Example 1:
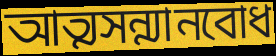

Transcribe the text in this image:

আত্মসন্মানবোধ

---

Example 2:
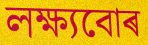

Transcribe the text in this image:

লক্ষ্যবোৰ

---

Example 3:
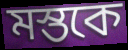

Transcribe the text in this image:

মস্তকে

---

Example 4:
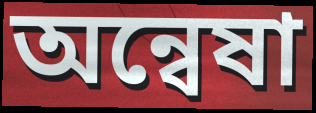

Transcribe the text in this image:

অন্বেষা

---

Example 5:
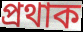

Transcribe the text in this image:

প্ৰথাক